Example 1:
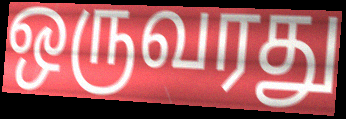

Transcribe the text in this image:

ஒருவரது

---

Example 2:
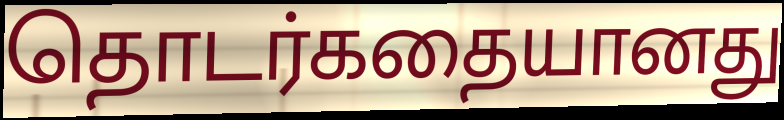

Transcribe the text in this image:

தொடர்கதையானது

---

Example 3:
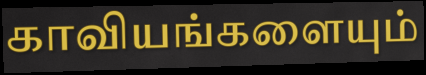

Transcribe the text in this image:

காவியங்களையும்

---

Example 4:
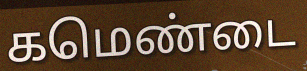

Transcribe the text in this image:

கமெண்டை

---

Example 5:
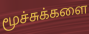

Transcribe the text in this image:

மூச்சுக்களை